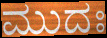
ಮುದಃ